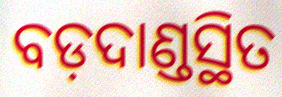
ବଡ଼ଦାଣ୍ଡସ୍ଥିତ